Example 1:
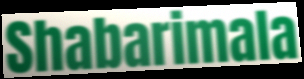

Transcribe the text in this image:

Shabarimala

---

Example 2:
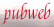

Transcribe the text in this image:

pubweb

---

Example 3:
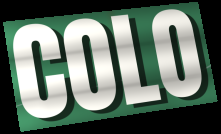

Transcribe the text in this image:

COLO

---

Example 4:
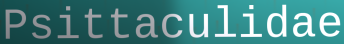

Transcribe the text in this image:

Psittaculidae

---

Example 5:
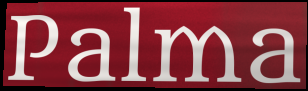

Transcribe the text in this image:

Palma